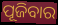
ପୂଜିବାର